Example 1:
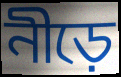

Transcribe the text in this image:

নীড়ে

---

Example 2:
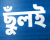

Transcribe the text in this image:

ছুঁলই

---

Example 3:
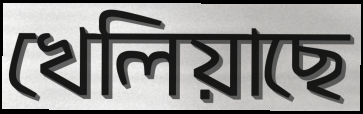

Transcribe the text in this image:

খেলিয়াছে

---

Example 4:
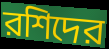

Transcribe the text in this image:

রশিদের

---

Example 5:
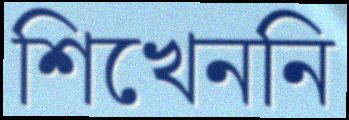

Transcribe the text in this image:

শিখেননি